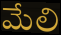
మేలి